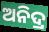
ଅନିଦ୍ର